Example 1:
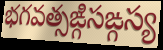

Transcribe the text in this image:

భగవత్సఙ్గిసఙ్గస్య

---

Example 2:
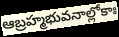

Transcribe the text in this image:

ఆబ్రహ్మభువనాల్లోకాః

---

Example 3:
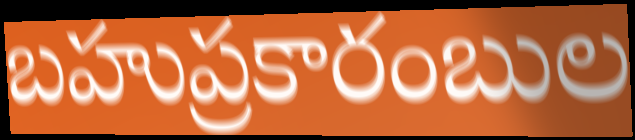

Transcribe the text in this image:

బహుప్రకారంబుల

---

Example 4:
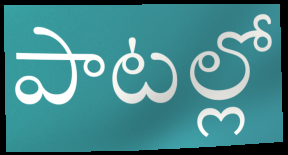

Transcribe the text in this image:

పాటల్లో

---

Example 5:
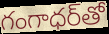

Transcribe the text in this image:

గంగాధర్‌తో